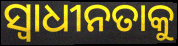
ସ୍ଵାଧୀନତାକୁ